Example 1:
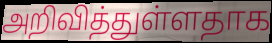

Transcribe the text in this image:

அறிவித்துள்ளதாக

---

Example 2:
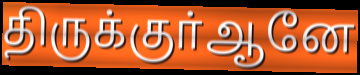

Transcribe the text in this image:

திருக்குர்ஆனே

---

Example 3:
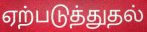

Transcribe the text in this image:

ஏற்படுத்துதல்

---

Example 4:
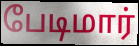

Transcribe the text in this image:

பேடிமார்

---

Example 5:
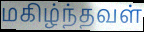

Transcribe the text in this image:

மகிழ்ந்தவள்